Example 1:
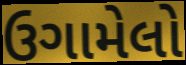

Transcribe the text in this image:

ઉગામેલો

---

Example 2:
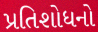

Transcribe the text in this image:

પ્રતિશોધનો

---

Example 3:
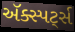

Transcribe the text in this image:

ઍક્સ્પર્ટ્સ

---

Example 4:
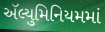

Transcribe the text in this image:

ઍલ્યુમિનિયમમાં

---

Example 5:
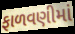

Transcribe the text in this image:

ફાળવણીમાં